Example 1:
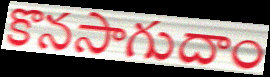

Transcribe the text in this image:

కొనసాగుదాం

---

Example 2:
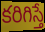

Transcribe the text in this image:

కరిగిస్తే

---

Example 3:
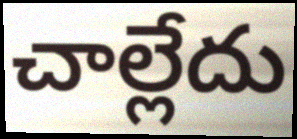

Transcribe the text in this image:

చాల్లేదు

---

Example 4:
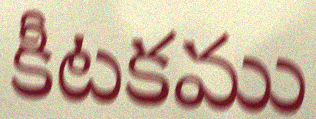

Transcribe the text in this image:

కీటకము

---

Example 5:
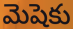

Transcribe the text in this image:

మెషెకు